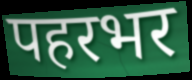
पहरभर